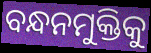
ବନ୍ଧନମୁକ୍ତିକୁ